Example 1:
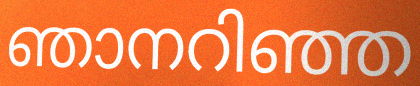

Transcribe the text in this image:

ഞാനറിഞ്ഞ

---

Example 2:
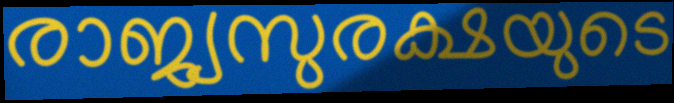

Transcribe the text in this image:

രാജ്യസുരക്ഷയുടെ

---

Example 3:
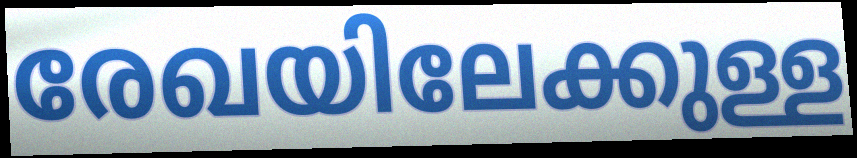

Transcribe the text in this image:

രേഖയിലേക്കുള്ള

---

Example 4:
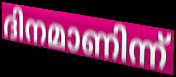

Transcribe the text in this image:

ദിനമാണിന്ന്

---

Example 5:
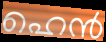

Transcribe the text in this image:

ഹെൻ